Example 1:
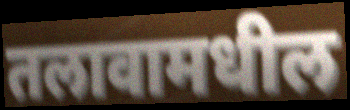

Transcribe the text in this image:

तलावामधील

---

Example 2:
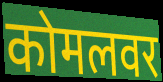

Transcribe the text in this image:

कोमलवर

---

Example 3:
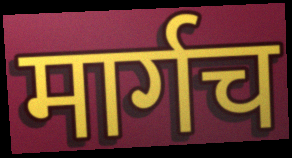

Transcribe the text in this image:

मार्गच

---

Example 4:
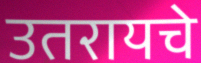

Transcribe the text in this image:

उतरायचे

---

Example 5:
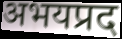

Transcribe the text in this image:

अभयप्रद